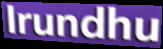
Irundhu